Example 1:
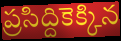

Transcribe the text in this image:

ప్రసిద్దికెక్కిన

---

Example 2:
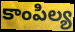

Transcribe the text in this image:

కాంపిల్య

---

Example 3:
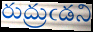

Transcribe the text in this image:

రుద్రుఁడని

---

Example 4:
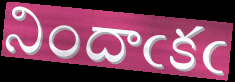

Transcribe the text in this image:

నిందాఁకఁ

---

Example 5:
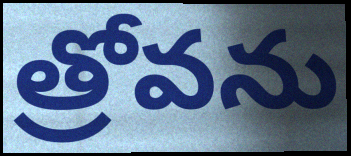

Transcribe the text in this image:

త్రోవను